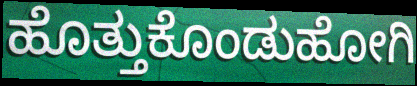
ಹೊತ್ತುಕೊಂಡುಹೋಗಿ